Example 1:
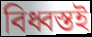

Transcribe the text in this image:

বিধ্বস্তই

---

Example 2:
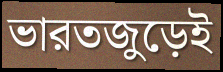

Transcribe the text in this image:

ভারতজুড়েই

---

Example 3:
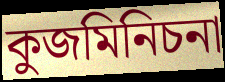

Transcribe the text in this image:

কুজমিনিচনা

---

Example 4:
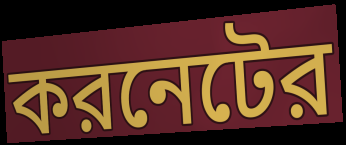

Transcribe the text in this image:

করনেটের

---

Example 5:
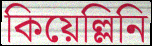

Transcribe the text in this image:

কিয়েল্লিনি